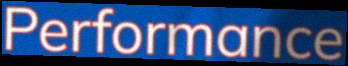
Performance